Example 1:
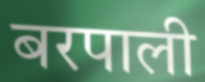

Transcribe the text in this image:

बरपाली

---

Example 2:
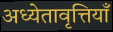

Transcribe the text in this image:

अध्येतावृत्तियाँ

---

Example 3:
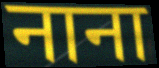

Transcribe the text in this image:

नाना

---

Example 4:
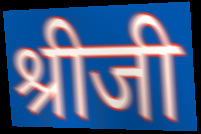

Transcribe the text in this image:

श्रीजी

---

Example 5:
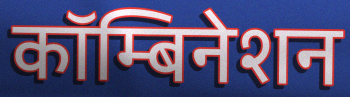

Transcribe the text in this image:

कॉम्बिनेशन